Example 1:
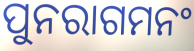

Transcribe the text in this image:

ପୁନରାଗମନଂ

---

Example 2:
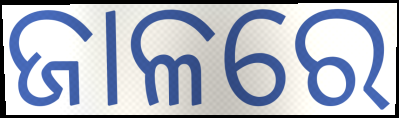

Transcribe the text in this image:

ଜାଳରେ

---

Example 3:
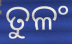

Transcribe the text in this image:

ତୁଳଂ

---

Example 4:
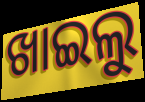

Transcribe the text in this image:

ଖାଇଲୁ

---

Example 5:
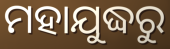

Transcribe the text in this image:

ମହାଯୁଦ୍ଧରୁ